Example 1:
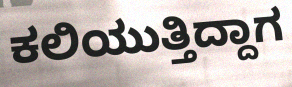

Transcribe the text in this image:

ಕಲಿಯುತ್ತಿದ್ದಾಗ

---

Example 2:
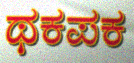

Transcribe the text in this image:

ಥಕಪಕ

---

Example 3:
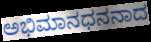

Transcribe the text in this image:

ಅಭಿಮಾನಧನನಾದ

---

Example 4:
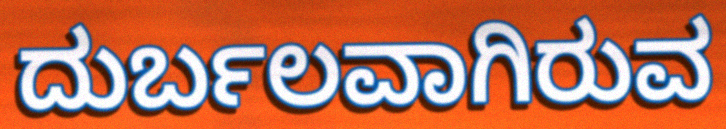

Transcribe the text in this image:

ದುರ್ಬಲವಾಗಿರುವ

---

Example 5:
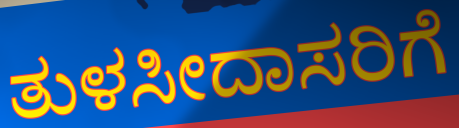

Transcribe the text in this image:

ತುಳಸೀದಾಸರಿಗೆ